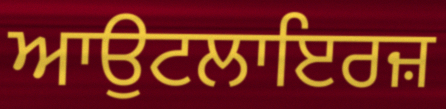
ਆਉਟਲਾਇਰਜ਼